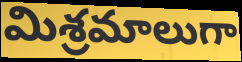
మిశ్రమాలుగా